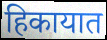
हिकायात